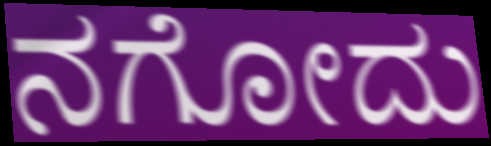
ನಗೋದು